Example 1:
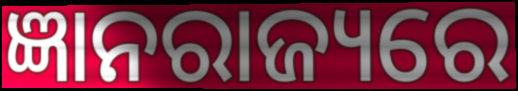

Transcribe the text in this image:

ଜ୍ଞାନରାଜ୍ୟରେ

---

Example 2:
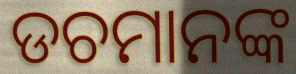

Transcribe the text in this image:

ଡଚମାନଙ୍କ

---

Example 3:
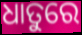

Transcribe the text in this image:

ଧାତୁରେ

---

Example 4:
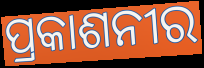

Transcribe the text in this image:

ପ୍ରକାଶନୀର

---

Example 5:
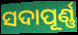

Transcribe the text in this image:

ସଦାପୂର୍ଣ୍ଣ